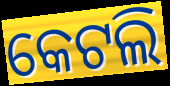
କେଟଲି